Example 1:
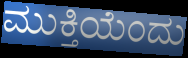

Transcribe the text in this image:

ಮುಕ್ತಿಯೆಂದು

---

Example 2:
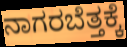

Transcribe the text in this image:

ನಾಗರಬೆತ್ತಕ್ಕೆ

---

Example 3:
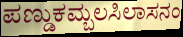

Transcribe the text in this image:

ಪಣ್ಡುಕಮ್ಬಲಸಿಲಾಸನಂ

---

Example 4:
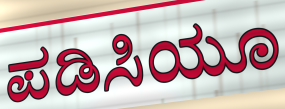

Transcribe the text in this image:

ಪಡಿಸಿಯೂ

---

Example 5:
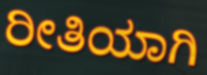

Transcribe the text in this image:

ರೀತಿಯಾಗಿ